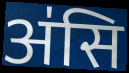
अ॑सि